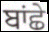
ਬਾਂਛੇ